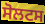
ਸੋਲਟਸ